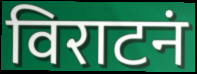
विराटनं